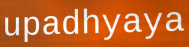
upadhyaya